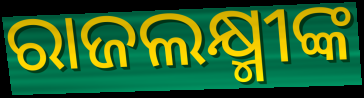
ରାଜଲକ୍ଷ୍ମୀଙ୍କ